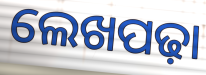
ଲେଖପଢ଼ା